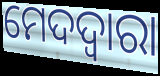
ମେଦଦ୍ଵାରା